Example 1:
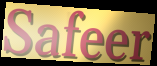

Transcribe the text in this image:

Safeer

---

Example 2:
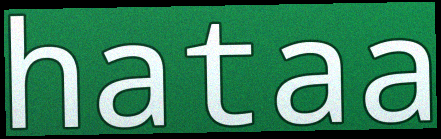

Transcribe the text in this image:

hataa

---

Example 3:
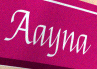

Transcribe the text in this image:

Aayna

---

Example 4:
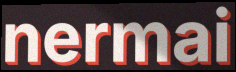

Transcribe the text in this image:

nermai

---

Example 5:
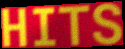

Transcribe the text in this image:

HITS